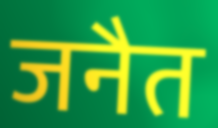
जनैत